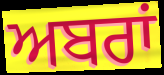
ਅਬਰਾਂ